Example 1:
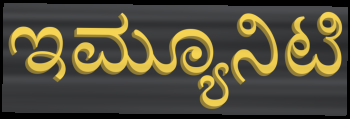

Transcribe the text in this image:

ಇಮ್ಯೂನಿಟಿ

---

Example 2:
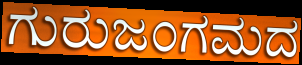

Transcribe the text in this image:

ಗುರುಜಂಗಮದ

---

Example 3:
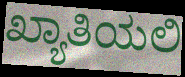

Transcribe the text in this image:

ಖ್ಯಾತಿಯಲಿ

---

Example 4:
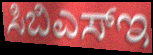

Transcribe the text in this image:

ಸಿಬಿಎಸ್ಇ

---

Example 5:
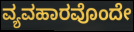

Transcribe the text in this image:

ವ್ಯವಹಾರವೊಂದೇ